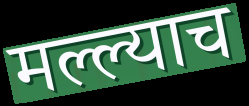
मल्ल्याच